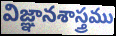
విజ్ఞానశాస్త్రము